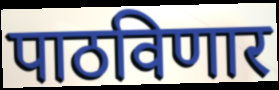
पाठविणार